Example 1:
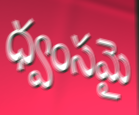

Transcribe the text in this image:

ధ్వంసమై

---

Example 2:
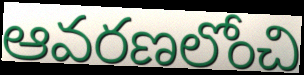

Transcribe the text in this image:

ఆవరణలోంచి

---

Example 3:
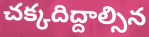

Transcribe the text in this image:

చక్కదిద్దాల్సిన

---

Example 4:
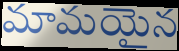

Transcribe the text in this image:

మామయైన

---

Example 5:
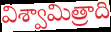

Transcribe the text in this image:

విశ్వామిత్రాది